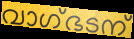
വാഗ്ഭടന്